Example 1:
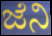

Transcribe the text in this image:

ಜೆನಿ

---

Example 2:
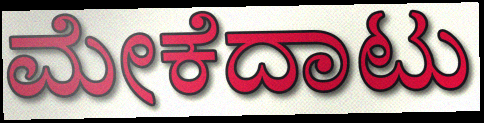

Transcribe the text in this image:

ಮೇಕೆದಾಟು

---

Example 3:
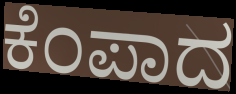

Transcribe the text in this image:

ಕೆಂಪಾದ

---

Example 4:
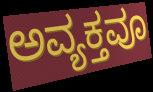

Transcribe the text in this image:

ಅವ್ಯಕ್ತವೂ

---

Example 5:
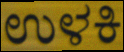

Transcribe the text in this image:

ಉಳಕಿ